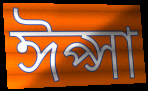
ঈপ্সা